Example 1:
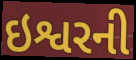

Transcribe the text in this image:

ઇશ્વરની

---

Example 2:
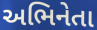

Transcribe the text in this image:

અભિનેતા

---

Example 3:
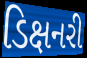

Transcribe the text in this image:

ડિક્ષનરી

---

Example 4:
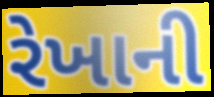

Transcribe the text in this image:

રેખાની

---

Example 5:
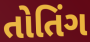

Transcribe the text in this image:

તોતિંગ